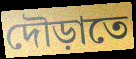
দৌড়াতে